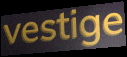
vestige